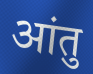
आंतु